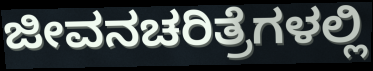
ಜೀವನಚರಿತ್ರೆಗಳಲ್ಲಿ